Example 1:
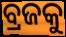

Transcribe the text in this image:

ବ୍ରଜକୁ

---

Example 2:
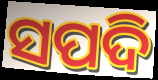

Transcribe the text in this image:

ସପଦି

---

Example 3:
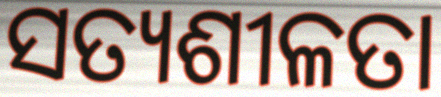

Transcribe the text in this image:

ସତ୍ୟଶୀଳତା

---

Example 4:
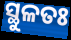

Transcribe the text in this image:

ସ୍ଥୁଳତଃ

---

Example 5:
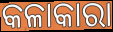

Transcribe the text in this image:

କଳାକାରା